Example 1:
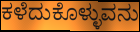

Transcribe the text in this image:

ಕಳೆದುಕೊಳ್ಳುವನು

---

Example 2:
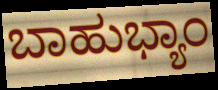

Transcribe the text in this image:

ಬಾಹುಭ್ಯಾಂ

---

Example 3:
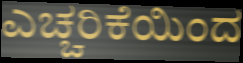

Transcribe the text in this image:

ಎಚ್ಚರಿಕೆಯಿಂದ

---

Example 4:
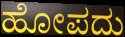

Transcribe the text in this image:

ಹೋಪದು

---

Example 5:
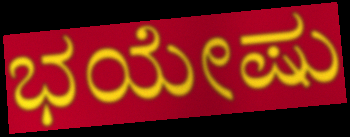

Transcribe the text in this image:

ಭಯೇಷು